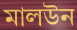
মালউন